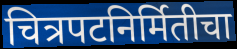
चित्रपटनिर्मितीचा